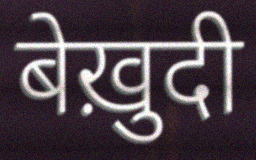
बेख़ुदी